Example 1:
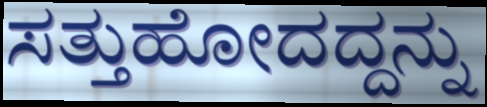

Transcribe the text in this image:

ಸತ್ತುಹೋದದ್ದನ್ನು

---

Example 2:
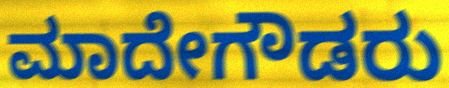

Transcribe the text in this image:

ಮಾದೇಗೌಡರು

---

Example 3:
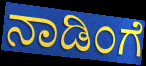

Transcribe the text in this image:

ನಾಡಿಂಗೆ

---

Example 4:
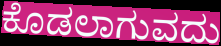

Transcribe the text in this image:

ಕೊಡಲಾಗುವದು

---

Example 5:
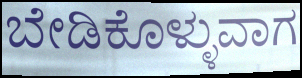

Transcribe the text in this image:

ಬೇಡಿಕೊಳ್ಳುವಾಗ